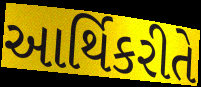
આર્થિકરીતે